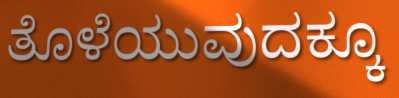
ತೊಳೆಯುವುದಕ್ಕೂ